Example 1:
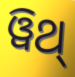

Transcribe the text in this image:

ୱିଥ୍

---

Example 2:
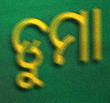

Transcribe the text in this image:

ଡୁମା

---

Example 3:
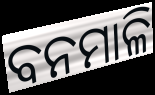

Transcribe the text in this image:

ବନମାଳି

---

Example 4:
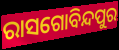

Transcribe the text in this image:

ରାସଗୋବିନ୍ଦପୁର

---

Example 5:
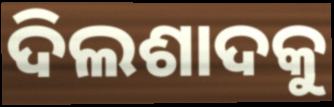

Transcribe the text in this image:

ଦିଲଶାଦକୁ